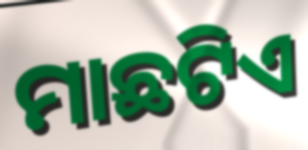
ମାଛଟିଏ